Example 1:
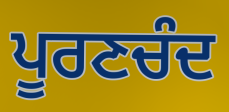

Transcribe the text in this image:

ਪੂਰਣਚੰਦ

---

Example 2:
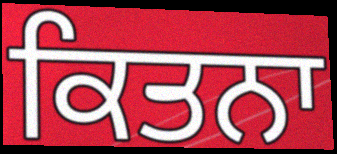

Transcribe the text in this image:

ਕਿਤਨਾ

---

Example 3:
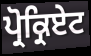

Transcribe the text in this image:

ਪ੍ਰੋਕ੍ਰਿਏਟ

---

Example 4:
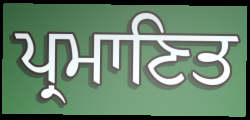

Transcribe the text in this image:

ਪ੍ਰਮਾਣਿਤ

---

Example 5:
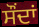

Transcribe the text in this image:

ਸੌਂਦਾਂ